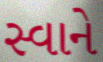
સ્વાને